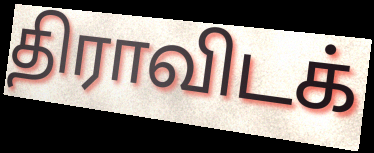
திராவிடக்